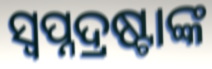
ସ୍ୱପ୍ନଦ୍ରଷ୍ଟାଙ୍କ